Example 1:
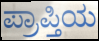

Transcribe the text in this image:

ಪ್ರಾಪ್ತಿಯ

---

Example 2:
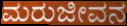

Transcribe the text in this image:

ಮರುಜೀವನ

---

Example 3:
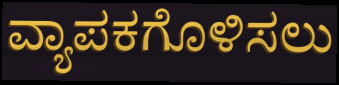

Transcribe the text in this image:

ವ್ಯಾಪಕಗೊಳಿಸಲು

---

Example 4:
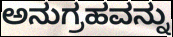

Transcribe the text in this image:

ಅನುಗ್ರಹವನ್ನು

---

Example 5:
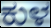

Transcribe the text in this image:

ಕುಳ